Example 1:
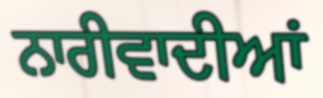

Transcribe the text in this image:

ਨਾਰੀਵਾਦੀਆਂ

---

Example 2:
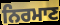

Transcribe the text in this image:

ਨਿਰਮਾਣ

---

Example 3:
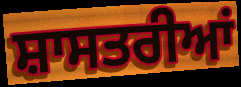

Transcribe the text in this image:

ਸ਼ਾਸਤਰੀਆਂ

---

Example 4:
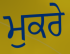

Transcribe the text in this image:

ਮੁਕਰੇ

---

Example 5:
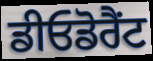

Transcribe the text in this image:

ਡੀਓਡੋਰੈਂਟ